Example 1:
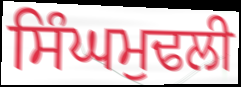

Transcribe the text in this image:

ਸਿੰਘਮੁਢਲੀ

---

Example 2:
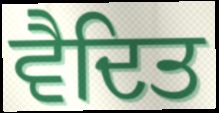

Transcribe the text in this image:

ਵੈਦਿਤ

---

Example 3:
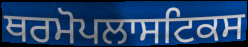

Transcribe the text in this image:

ਥਰਮੋਪਲਾਸਟਿਕਸ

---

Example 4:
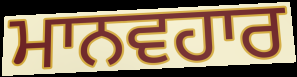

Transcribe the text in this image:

ਮਾਨਵਹਾਰ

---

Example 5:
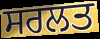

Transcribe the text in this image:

ਸਰਲਤ